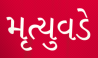
મૃત્યુવડે